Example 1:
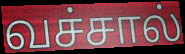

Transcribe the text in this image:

வச்சால்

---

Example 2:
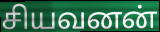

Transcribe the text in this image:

சியவனன்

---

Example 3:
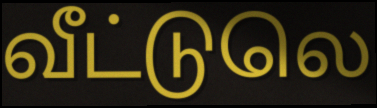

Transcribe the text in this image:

வீட்டுலெ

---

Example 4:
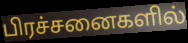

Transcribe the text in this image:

பிரச்சனைகளில்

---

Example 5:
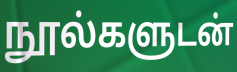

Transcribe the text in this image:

நூல்களுடன்